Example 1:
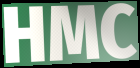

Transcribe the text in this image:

HMC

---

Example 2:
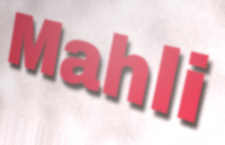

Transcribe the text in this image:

Mahli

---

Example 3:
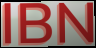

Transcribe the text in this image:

IBN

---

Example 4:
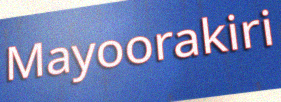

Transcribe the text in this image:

Mayoorakiri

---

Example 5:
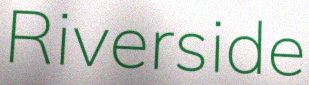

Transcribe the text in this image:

Riverside